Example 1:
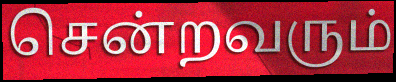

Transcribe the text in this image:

சென்றவரும்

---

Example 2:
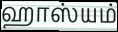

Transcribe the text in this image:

ஹாஸ்யம்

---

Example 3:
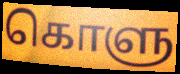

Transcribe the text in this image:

கொளு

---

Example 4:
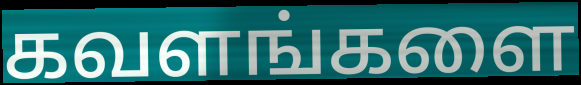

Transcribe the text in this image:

கவளங்களை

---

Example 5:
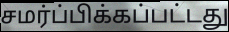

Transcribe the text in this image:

சமர்ப்பிக்கப்பட்டது